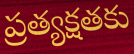
ప్రత్యక్షతకు